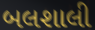
બલશાલી